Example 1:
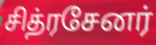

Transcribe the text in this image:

சித்ரசேனர்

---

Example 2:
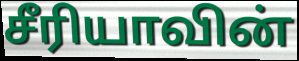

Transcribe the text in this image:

சீரியாவின்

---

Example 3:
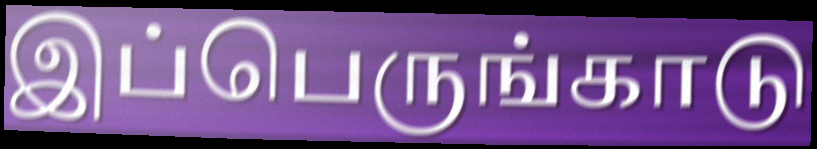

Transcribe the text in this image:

இப்பெருங்காடு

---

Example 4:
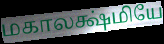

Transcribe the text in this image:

மகாலக்ஷ்மியே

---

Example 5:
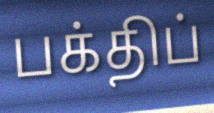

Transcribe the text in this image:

பக்திப்